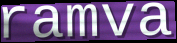
ramva